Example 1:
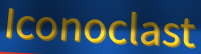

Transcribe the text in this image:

Iconoclast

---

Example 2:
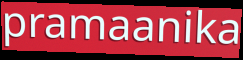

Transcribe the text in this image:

pramaanika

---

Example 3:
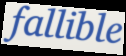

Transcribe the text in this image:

fallible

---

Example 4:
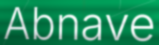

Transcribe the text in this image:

Abnave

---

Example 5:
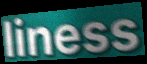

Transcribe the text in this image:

liness